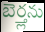
బెర్త్లను